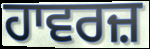
ਹਾਵਰਜ਼